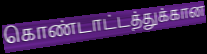
கொண்டாட்டத்துக்கான